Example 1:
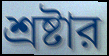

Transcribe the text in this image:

শ্রষ্টার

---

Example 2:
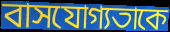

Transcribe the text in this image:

বাসযোগ্যতাকে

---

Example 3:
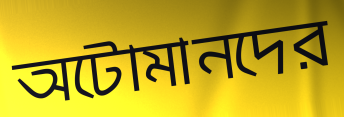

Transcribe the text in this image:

অটোমানদের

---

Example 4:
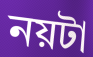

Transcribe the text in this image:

নয়টা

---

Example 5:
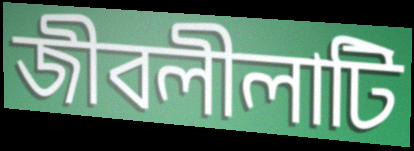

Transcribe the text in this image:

জীবলীলাটি